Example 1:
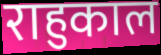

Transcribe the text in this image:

राहुकाल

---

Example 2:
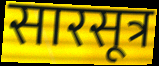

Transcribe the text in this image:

सारसूत्र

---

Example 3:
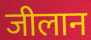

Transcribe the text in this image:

जीलान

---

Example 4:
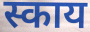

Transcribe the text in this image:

स्काय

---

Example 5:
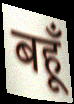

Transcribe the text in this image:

बहूँ